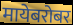
मायेबरोबर